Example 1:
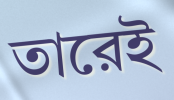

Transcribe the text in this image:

তারেই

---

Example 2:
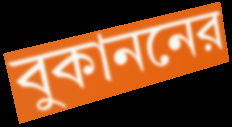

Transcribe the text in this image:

বুকাননের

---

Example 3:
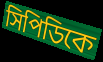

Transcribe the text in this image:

সিপিডিকে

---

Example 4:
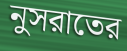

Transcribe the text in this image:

নুসরাতের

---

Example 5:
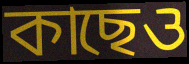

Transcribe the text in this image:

কাছেও